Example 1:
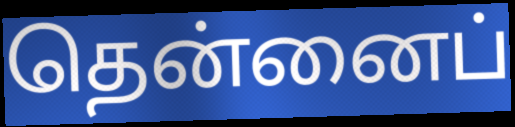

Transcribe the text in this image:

தென்னைப்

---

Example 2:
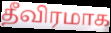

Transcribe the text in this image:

தீவிரமாக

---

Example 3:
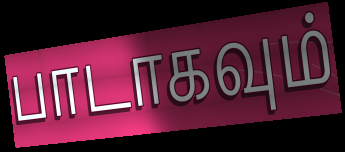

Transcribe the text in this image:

பாடாகவும்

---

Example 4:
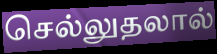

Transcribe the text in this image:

செல்லுதலால்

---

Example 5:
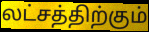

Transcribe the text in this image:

லட்சத்திற்கும்